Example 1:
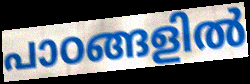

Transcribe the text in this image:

പാഠങ്ങളിൽ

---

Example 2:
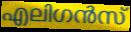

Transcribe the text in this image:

എലിഗൻസ്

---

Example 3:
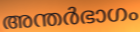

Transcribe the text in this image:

അന്തർഭാഗം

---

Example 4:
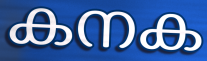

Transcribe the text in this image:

കനക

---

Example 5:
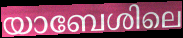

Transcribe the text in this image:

യാബേശിലെ